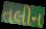
તલીન